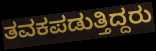
ತವಕಪಡುತ್ತಿದ್ದರು